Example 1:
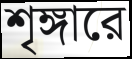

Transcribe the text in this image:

শৃঙ্গারে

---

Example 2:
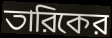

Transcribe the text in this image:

তারিকের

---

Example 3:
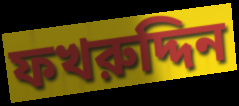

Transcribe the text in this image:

ফখরুদ্দিন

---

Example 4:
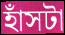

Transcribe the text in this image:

হাঁসটা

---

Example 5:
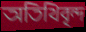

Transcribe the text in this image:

অতিথিবৃন্দ